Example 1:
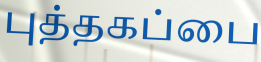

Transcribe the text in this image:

புத்தகப்பை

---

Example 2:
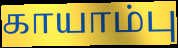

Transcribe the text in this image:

காயாம்பு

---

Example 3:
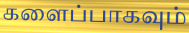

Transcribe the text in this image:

களைப்பாகவும்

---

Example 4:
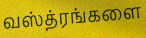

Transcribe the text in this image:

வஸ்த்ரங்களை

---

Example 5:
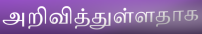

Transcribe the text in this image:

அறிவித்துள்ளதாக